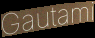
Gautami